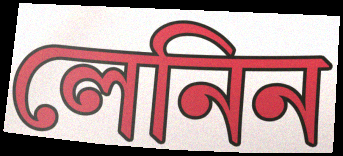
লেনিন